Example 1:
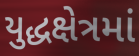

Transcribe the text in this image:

યુદ્ધક્ષેત્રમાં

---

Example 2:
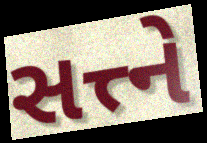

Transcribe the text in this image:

સત્ત્ને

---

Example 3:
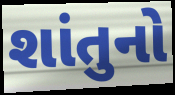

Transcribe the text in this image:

શાંતુનો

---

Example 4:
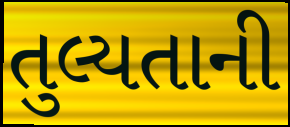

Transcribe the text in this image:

તુલ્યતાની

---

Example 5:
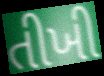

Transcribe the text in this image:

તીખી